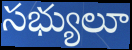
సభ్యులూ